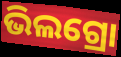
ଭିଲଗ୍ରୋ